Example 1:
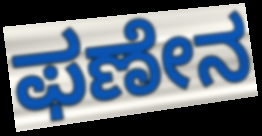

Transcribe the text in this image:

ಫಣೇನ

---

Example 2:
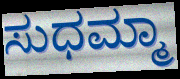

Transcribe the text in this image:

ಸುಧಮ್ಮಾ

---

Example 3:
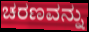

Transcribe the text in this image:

ಚರಣವನ್ನು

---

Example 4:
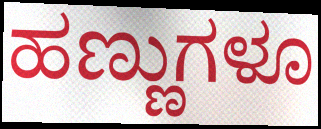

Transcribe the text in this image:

ಹಣ್ಣುಗಳೂ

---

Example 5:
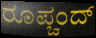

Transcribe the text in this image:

ರೂಪ್ಚಂದ್